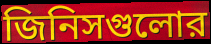
জিনিসগুলোর